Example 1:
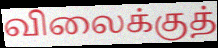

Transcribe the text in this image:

விலைக்குத்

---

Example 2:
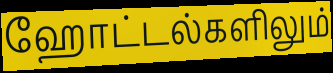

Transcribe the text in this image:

ஹோட்டல்களிலும்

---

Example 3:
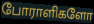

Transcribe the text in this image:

போராளிகளோ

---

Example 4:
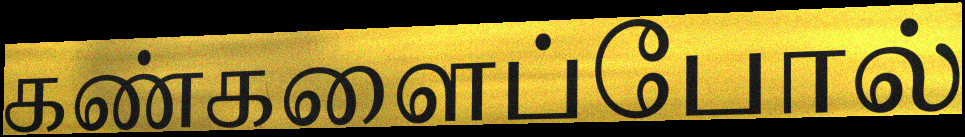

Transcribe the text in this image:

கண்களைப்போல்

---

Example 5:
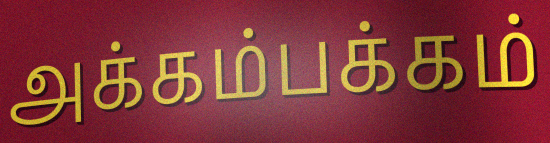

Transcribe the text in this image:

அக்கம்பக்கம்